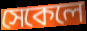
সেকেলে